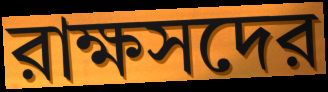
রাক্ষসদের